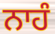
ਨਾਹੰ